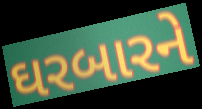
ઘરબારને